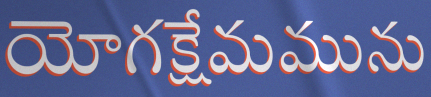
యోగక్షేమమును